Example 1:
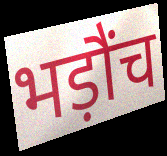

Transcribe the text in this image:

भड़ौंच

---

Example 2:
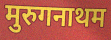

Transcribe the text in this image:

मुरुगनाथम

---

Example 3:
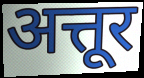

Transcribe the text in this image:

अत्तूर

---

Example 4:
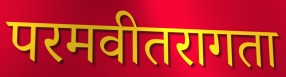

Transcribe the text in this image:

परमवीतरागता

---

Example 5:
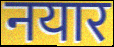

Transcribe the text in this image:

नयार